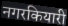
नगरकियारी